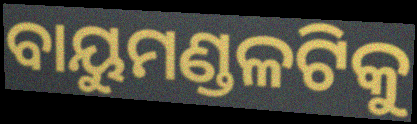
ବାୟୁମଣ୍ଡଳଟିକୁ